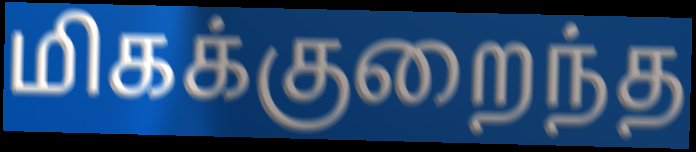
மிகக்குறைந்த